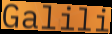
Galili